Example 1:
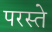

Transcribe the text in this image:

परस्ते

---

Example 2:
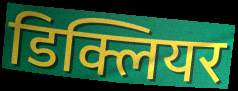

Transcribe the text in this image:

डिक्लियर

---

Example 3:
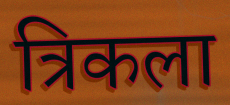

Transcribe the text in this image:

त्रिकला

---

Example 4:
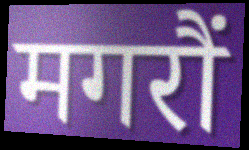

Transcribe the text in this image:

मगरौं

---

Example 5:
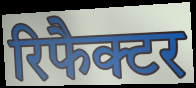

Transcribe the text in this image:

रिफैक्टर